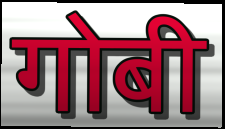
गोबी